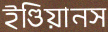
ইণ্ডিয়ানস